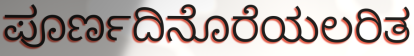
ಪೂರ್ಣದಿನೊರೆಯಲರಿತ